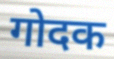
गोदक